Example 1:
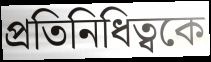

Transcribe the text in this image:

প্রতিনিধিত্বকে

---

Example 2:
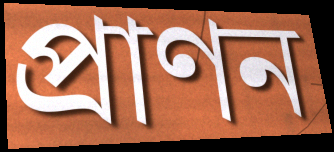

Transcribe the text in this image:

প্রাণন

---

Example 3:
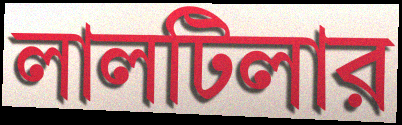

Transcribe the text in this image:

লালটিলার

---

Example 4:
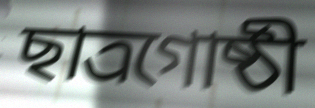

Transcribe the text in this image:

ছাত্রগোষ্ঠী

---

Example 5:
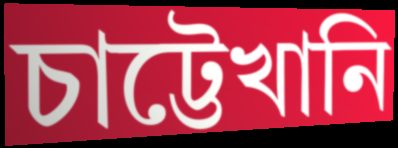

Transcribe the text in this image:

চাট্টেখানি